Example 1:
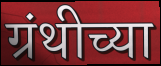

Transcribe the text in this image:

ग्रंथीच्या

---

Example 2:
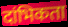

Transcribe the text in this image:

दांभिकता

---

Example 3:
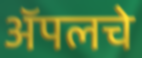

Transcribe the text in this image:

ॲपलचे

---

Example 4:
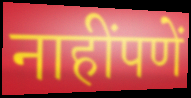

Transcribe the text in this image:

नाहींपणें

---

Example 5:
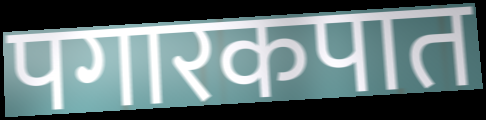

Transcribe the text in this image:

पगारकपात